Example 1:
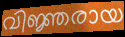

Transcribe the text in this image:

വിജ്ഞരായ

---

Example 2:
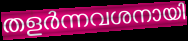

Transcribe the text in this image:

തളർന്നവശനായി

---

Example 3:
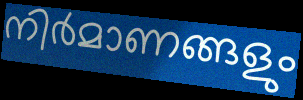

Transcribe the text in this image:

നിർമാണങ്ങളും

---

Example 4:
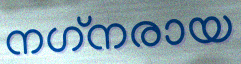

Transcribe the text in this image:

നഗ്‌നരായ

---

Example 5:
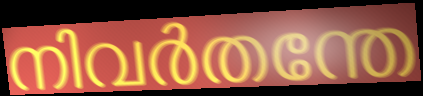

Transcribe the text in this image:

നിവർതന്തേ